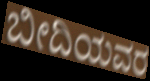
ಬೀದಿಯವರ